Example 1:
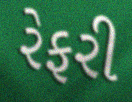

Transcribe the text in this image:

રેફરી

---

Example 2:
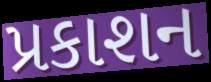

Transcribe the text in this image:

પ્રકાશન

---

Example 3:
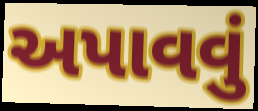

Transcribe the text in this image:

અપાવવું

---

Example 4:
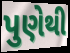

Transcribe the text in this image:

પુણેથી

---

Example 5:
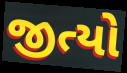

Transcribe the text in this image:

જીત્યો